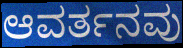
ಆವರ್ತನವು